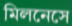
মিলনেসে